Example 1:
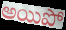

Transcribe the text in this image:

అయిపో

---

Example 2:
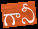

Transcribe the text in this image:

గానీ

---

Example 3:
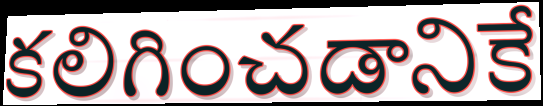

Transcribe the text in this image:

కలిగించడానికే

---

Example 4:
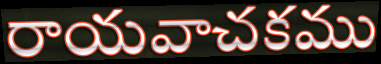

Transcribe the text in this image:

రాయవాచకము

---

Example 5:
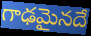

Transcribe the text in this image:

గాఢమైనదే